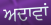
ਅਦਾਵਾਂ